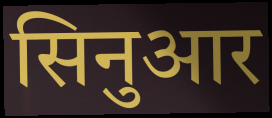
सिनुआर